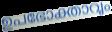
ഉപഭോക്താവും